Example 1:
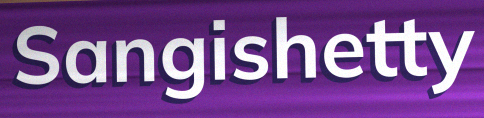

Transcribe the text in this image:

Sangishetty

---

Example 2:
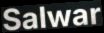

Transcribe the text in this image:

Salwar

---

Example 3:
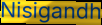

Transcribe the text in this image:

Nisigandh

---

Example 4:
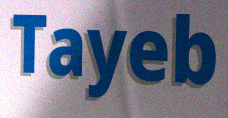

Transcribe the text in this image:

Tayeb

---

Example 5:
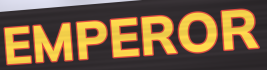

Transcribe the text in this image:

EMPEROR